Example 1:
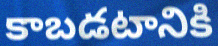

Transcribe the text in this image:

కాబడటానికి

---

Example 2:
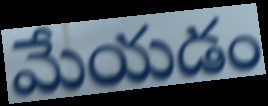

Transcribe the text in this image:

మేయడం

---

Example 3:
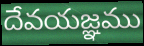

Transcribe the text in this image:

దేవయజ్ఞము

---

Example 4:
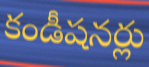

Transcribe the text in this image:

కండీషనర్లు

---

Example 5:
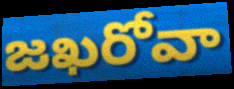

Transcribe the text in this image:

జఖరోవా